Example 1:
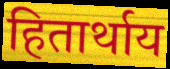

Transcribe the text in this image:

हितार्थाय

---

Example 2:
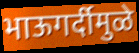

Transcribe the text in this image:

भाऊगर्दीमुळे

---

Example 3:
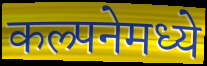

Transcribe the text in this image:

कल्पनेमध्ये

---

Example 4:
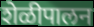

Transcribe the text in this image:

शेळीपालन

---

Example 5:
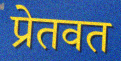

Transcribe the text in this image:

प्रेतवत